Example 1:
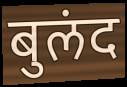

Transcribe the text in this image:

बुलंद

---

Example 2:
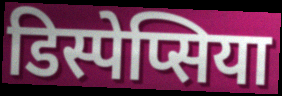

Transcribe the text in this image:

डिस्पेप्सिया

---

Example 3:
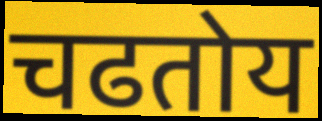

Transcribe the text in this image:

चढतोय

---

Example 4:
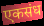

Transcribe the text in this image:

एकसंध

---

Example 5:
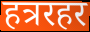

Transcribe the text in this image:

हत्ररहर